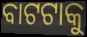
ବାଟଟାକୁ